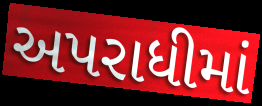
અપરાધીમાં